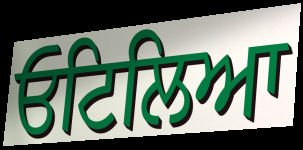
ਓਟਿਲਿਆ